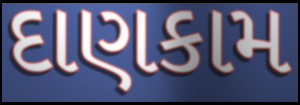
દાણકામ